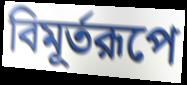
বিমূর্তরূপে